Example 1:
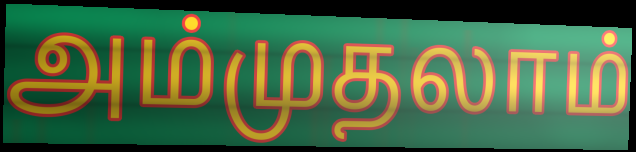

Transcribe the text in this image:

அம்முதலாம்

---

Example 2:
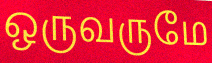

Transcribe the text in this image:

ஒருவருமே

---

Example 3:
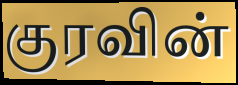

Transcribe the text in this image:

குரவின்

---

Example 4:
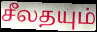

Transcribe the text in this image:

சீலதயும்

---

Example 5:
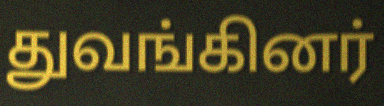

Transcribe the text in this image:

துவங்கினர்